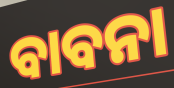
ବାବନା